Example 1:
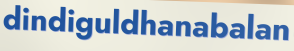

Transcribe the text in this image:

dindiguldhanabalan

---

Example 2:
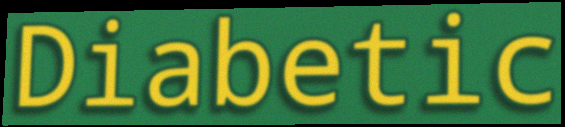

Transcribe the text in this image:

Diabetic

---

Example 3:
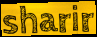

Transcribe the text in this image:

sharir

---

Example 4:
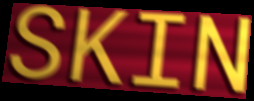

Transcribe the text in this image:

SKIN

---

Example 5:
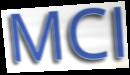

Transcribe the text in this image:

MCI